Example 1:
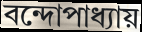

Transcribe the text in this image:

বন্দোপাধ্যায়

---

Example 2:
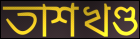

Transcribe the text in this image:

তাশখণ্ড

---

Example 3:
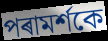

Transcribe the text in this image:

পৰামৰ্শকে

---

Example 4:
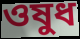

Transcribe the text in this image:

ওষুধ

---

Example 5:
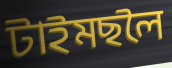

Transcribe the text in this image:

টাইমছলৈ